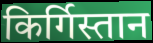
किर्गिस्तान